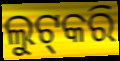
ଲୁଟ୍‌କରି